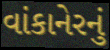
વાંકાનેરનું